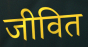
जीवित